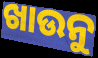
ଖାଉନୁ